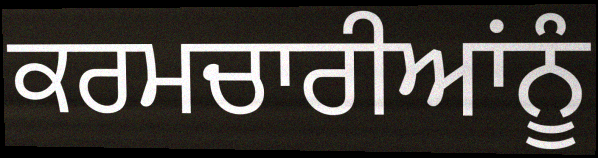
ਕਰਮਚਾਰੀਆਂਨੂੰ